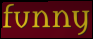
funny